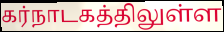
கர்நாடகத்திலுள்ள